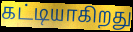
கட்டியாகிறது